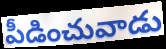
పీడించువాడు